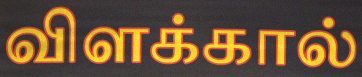
விளக்கால்